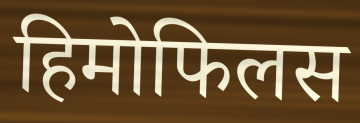
हिमोफिलस